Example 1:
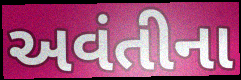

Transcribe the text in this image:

અવંતીના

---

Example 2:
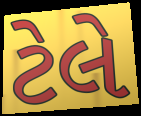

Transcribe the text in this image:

ટેલે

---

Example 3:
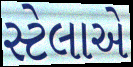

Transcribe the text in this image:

સ્ટેલાએ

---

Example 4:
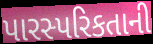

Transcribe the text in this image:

પારસ્પરિકતાની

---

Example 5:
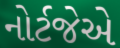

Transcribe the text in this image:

નોર્ટજેએ